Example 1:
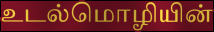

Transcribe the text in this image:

உடல்மொழியின்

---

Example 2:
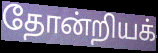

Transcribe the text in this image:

தோன்றியக்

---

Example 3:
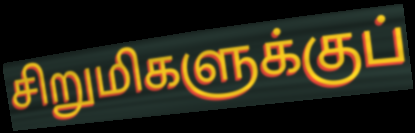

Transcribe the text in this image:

சிறுமிகளுக்குப்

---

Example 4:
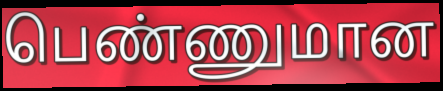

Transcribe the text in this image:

பெண்ணுமான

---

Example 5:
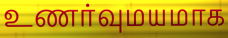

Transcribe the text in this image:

உணர்வுமயமாக